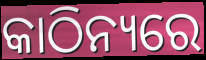
କାଠିନ୍ୟରେ